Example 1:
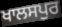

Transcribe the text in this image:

ਖਾਲਸਪੁਰ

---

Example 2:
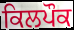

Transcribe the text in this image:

ਕਿਲਪੌਕ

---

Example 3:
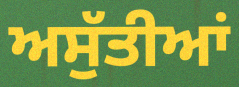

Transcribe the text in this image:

ਅਸੁੱਤੀਆਂ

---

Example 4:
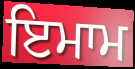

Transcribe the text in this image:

ਇਮਾਮ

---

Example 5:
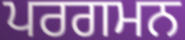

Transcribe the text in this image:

ਪਰਗਮਨ